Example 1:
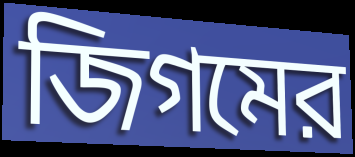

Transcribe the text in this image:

জিগমের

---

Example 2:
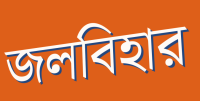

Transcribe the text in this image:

জলবিহার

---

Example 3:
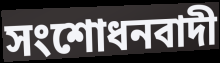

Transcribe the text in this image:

সংশোধনবাদী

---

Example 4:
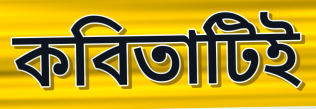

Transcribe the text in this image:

কবিতাটিই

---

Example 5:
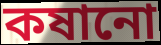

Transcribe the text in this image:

কষানো